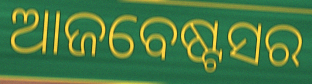
ଆଜବେଷ୍ଟସର